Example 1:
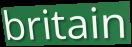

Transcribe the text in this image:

britain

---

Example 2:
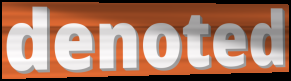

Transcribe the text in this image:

denoted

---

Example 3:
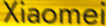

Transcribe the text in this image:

Xiaomei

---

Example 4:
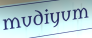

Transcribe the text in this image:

mudiyum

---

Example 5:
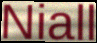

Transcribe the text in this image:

Niall